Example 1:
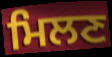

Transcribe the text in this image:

ਮਿਲਣ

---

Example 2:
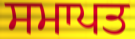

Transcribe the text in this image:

ਸਮਾਪਤ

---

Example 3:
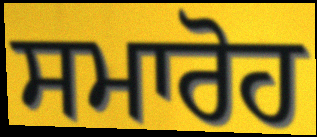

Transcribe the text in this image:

ਸਮਾਰੋਹ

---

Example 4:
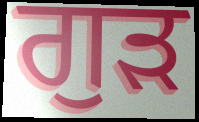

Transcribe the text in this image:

ਗੁੜ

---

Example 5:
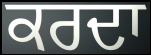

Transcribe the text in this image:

ਕਰਦਾ